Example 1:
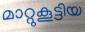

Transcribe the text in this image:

മാറ്റുകൂട്ടിയ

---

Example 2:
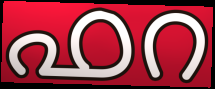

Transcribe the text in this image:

ഫറ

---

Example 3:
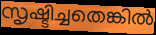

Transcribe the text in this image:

സൃഷ്ടിച്ചതെങ്കിൽ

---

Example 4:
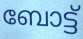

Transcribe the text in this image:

ബോട്ട്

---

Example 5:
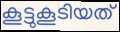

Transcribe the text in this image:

കൂട്ടുകൂടിയത്